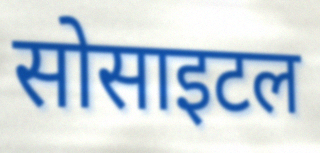
सोसाइटल